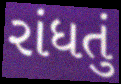
રાંધતું